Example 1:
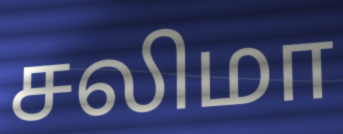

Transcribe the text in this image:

சலிமா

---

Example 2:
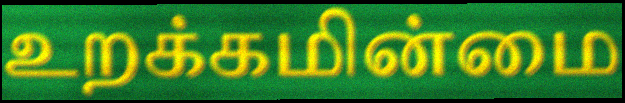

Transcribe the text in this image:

உறக்கமின்மை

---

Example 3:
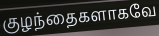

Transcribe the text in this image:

குழந்தைகளாகவே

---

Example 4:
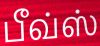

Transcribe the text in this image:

பீவ்ஸ்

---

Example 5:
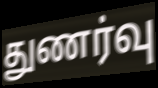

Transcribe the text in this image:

துணர்வு